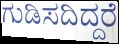
ಗುಡಿಸದಿದ್ದರೆ